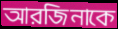
আরজিনাকে